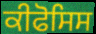
ਕੀਫੋਸਿਸ